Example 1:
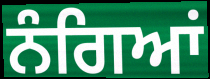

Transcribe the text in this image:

ਨੰਗਿਆਂ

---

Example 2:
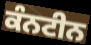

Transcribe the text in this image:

ਕੰਨਟੀਨ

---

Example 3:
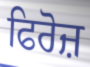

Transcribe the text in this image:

ਫਿਰੋਜ਼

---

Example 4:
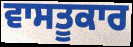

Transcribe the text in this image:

ਵਾਸਤੂਕਾਰ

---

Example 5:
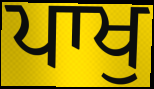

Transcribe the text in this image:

ਪਾਖੁ